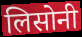
लिसोनी